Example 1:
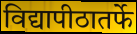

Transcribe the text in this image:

विद्यापीठातर्फे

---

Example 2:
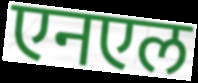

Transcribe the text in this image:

एनएल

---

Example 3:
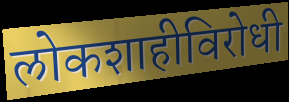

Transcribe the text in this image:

लोकशाहीविरोधी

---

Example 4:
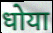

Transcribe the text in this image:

धोया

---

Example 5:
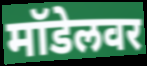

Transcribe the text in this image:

मॉडेलवर